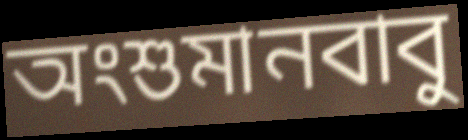
অংশুমানবাবু